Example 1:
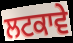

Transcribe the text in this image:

ਲਟਕਾਵੇ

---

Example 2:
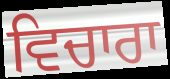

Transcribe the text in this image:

ਵਿਚਾਰਾ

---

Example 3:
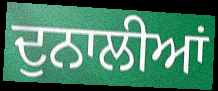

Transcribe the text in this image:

ਦੁਨਾਲੀਆਂ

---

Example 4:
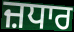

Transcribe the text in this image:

ਜ਼ਧਾਰ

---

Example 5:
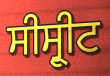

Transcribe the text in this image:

ਸੀਸ੍ਟ੍ਰੀਟ